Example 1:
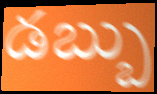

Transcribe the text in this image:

డబ్బు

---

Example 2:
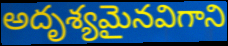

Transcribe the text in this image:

అదృశ్యమైనవిగాని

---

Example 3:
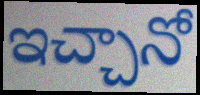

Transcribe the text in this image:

ఇచ్చానో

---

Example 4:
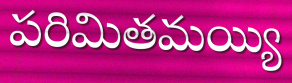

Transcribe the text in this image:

పరిమితమయ్యి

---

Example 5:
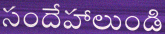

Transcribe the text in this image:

సందేహాలుండి